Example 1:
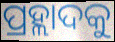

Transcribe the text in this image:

ପ୍ରହ୍ଲାଦକୁ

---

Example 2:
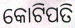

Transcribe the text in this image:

କୋଟିପତି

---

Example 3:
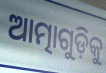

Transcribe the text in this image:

ଆତ୍ମାଗୁଡ଼ିକୁ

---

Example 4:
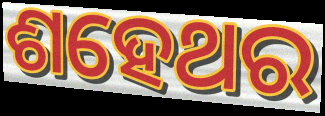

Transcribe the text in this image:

ଶହେଥର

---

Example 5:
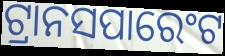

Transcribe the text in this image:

ଟ୍ରାନସପାରେଂଟ